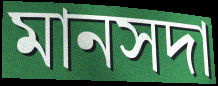
মানসদা